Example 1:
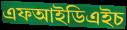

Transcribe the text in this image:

এফআইডিএইচ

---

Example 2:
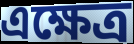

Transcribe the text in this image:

এক্ষেত্র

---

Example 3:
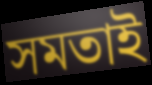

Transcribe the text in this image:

সমতাই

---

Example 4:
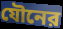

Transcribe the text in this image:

যৌনের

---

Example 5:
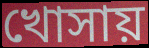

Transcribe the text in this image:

খোসায়